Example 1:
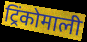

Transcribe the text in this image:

ट्रिंकोमाली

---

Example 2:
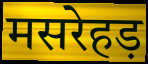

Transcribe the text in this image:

मसरेहड़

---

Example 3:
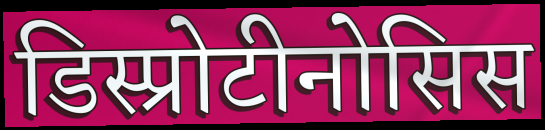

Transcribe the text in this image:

डिस्प्रोटीनोसिस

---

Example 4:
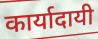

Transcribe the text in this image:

कार्यादायी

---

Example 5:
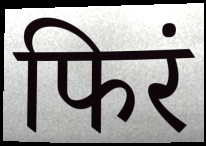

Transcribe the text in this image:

फिरं